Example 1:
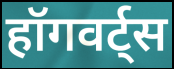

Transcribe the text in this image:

हॉगवर्ट्स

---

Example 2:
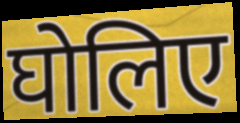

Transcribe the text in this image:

घोलिए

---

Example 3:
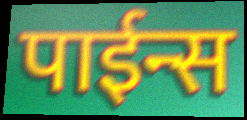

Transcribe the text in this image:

पाईन्स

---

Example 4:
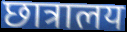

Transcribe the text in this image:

छात्रालय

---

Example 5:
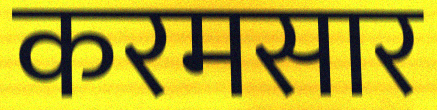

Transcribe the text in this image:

करमसार